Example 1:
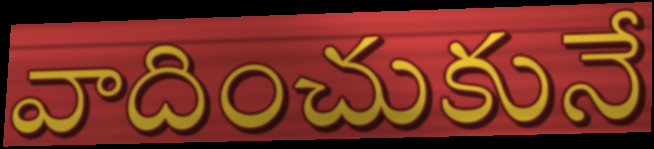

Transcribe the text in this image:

వాదించుకునే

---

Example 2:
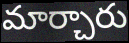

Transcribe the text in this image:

మార్చారు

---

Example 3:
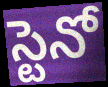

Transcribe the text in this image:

స్టెనో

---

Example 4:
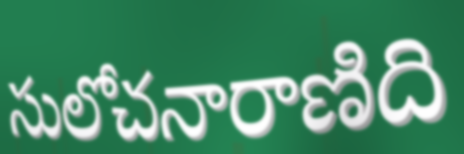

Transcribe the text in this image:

సులోచనారాణిది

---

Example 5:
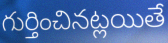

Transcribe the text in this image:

గుర్తించినట్లయితే